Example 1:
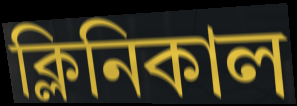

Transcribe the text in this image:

ক্লিনিকাল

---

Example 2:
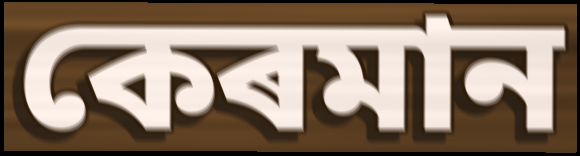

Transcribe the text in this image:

কেৰমান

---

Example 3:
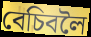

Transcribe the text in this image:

বেচিবলৈ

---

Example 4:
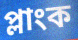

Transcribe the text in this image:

প্লাংক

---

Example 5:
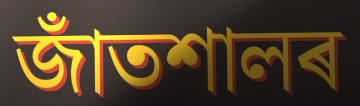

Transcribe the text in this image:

জাঁতশালৰ